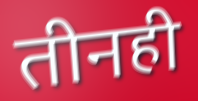
तीनही